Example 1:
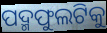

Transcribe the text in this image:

ପଦ୍ମଫୁଲଟିକୁ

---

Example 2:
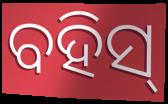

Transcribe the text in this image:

ବହିସ୍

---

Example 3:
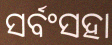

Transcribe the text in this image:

ସର୍ବଂସହା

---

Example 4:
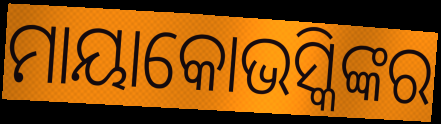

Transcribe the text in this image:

ମାୟାକୋଭସ୍କିଙ୍କର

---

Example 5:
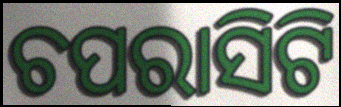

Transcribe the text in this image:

ଚପରାସିଟି